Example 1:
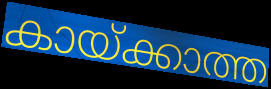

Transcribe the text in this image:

കായ്ക്കാത്ത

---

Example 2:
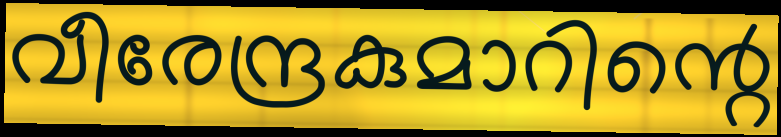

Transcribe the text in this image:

വീരേന്ദ്രകുമാറിന്റെ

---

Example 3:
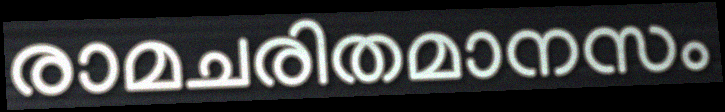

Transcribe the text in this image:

രാമചരിതമാനസം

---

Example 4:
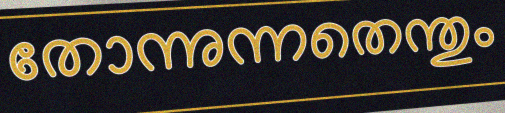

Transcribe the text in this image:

തോന്നുന്നതെന്തും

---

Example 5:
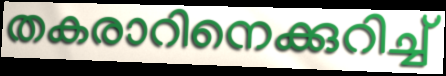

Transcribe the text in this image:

തകരാറിനെക്കുറിച്ച്